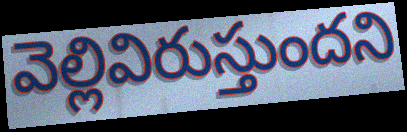
వెల్లివిరుస్తుందని